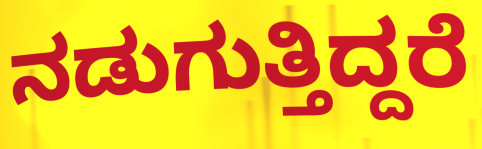
ನಡುಗುತ್ತಿದ್ದರೆ